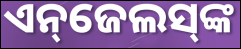
ଏନ୍‌ଜେଲସ୍‌ଙ୍କ